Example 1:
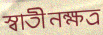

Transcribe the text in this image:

স্বাতীনক্ষত্র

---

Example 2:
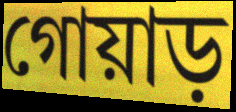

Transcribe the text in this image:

গোয়াড়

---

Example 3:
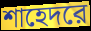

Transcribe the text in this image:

শাহেদরে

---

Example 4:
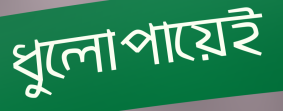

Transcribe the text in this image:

ধুলোপায়েই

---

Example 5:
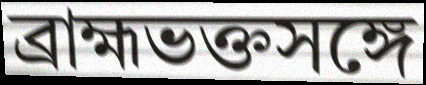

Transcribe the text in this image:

ব্রাহ্মভক্তসঙ্গে